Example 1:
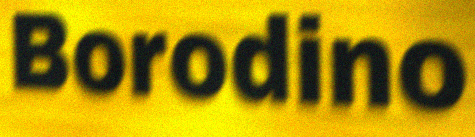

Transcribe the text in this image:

Borodino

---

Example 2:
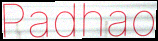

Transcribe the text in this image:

Padhao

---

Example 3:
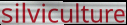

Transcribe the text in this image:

silviculture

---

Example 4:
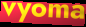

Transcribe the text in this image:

vyoma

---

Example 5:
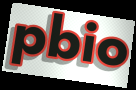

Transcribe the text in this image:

pbio